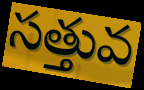
సత్తువ